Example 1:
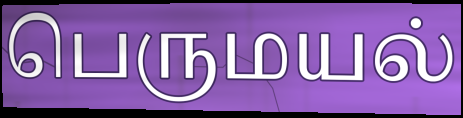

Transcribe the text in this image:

பெருமயல்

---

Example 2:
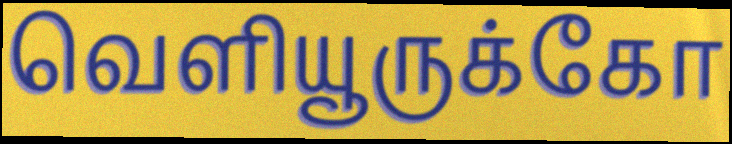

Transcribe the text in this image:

வெளியூருக்கோ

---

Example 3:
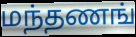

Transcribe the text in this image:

மந்தணங்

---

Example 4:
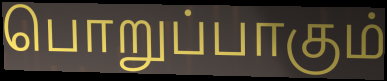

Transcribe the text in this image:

பொறுப்பாகும்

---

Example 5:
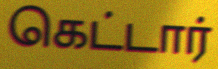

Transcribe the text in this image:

கெட்டார்